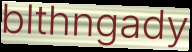
blthngady